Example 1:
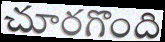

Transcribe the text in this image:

చూరగొంది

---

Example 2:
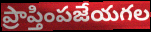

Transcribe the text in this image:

ప్రాప్తింపజేయగల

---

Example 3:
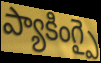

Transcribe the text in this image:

ప్యాకింగ్పై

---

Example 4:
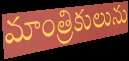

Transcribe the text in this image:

మాంత్రికులును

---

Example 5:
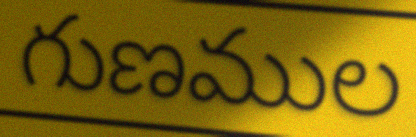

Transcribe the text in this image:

గుణముల